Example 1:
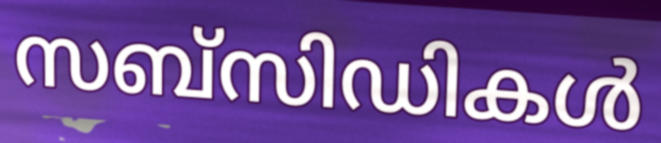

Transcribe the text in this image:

സബ്സിഡികൾ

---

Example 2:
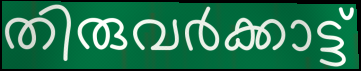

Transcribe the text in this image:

തിരുവർക്കാട്ട്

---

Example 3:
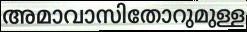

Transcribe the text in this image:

അമാവാസിതോറുമുള്ള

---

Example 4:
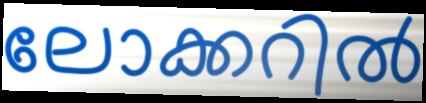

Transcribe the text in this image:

ലോക്കറിൽ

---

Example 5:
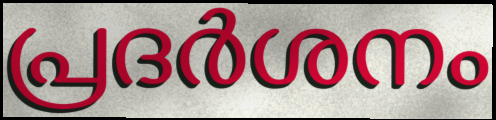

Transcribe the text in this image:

പ്രദർശനം